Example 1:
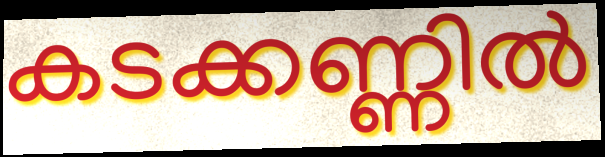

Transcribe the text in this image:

കടക്കണ്ണിൽ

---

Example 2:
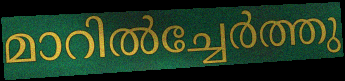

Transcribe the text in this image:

മാറിൽച്ചേർത്തു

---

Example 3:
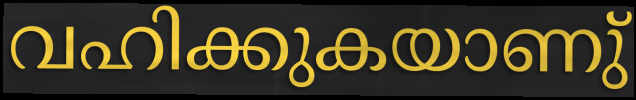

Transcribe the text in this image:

വഹിക്കുകയാണു്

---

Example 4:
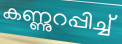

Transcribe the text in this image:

കണ്ണുറപ്പിച്ച്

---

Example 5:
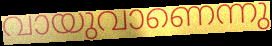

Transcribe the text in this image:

വായുവാണെന്നു